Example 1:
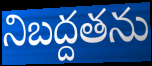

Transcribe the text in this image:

నిబద్దతను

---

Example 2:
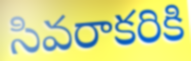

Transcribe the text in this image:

సివరాకరికి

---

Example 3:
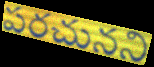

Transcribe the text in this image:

పరచునని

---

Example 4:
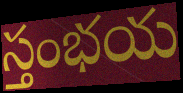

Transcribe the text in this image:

స్తంభయ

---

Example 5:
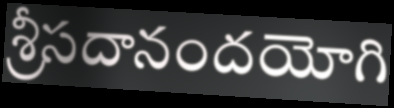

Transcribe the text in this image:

శ్రీసదానందయోగి